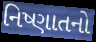
નિષ્ણાતનો